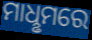
ମାଧୢମରେ